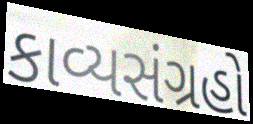
કાવ્યસંગ્રહો